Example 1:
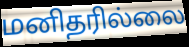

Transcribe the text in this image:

மனிதரில்லை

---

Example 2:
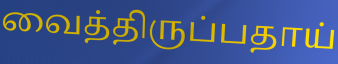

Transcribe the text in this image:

வைத்திருப்பதாய்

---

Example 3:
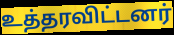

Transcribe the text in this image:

உத்தரவிட்டனர்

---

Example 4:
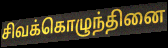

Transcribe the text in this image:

சிவக்கொழுந்தினை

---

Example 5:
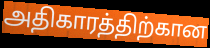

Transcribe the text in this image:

அதிகாரத்திற்கான